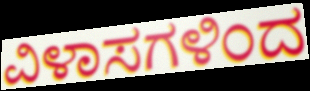
ವಿಳಾಸಗಳಿಂದ